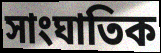
সাংঘাতিক